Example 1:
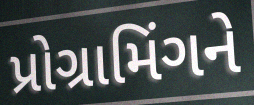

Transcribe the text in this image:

પ્રોગ્રામિંગને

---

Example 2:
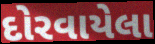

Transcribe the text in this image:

દોરવાયેલા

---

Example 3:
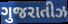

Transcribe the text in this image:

ગુજરાતીઝ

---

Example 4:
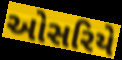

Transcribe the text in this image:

ઓસરિયે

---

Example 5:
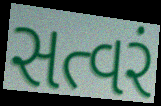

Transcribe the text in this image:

સત્વરં